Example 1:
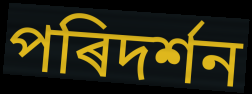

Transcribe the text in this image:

পৰিদৰ্শন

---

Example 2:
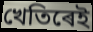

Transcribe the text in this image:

খেতিৰেই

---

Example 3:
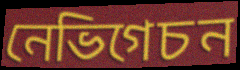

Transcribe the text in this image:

নেভিগেচন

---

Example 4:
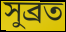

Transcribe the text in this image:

সুব্ৰত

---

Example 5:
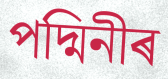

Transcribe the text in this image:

পদ্মিনীৰ